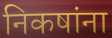
निकषांना